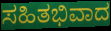
ಸಹಿತಭಿವಾದ